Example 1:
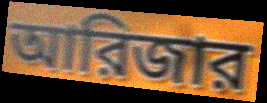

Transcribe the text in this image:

আরিজার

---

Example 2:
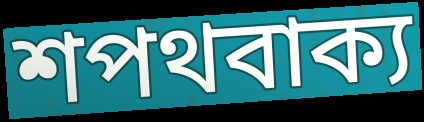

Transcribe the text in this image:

শপথবাক্য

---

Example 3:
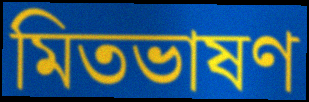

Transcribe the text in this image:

মিতভাষণ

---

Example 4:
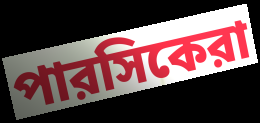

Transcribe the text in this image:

পারসিকেরা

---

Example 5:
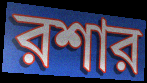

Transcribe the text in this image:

রশার